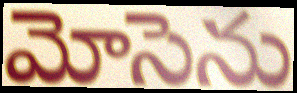
మోసెను